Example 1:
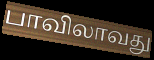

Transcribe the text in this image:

பாவிலாவது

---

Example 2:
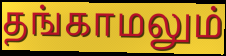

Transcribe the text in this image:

தங்காமலும்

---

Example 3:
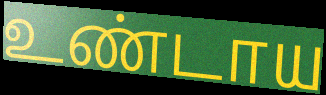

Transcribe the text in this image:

உண்டாய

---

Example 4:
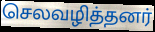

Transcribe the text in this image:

செலவழித்தனர்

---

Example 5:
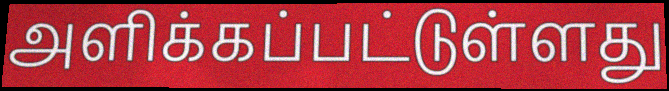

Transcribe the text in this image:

அளிக்கப்பட்டுள்ளது